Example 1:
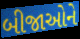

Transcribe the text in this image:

બીજાઓને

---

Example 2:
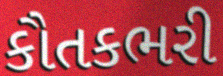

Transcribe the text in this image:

કૌતકભરી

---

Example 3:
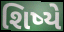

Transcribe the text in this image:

શિષ્યે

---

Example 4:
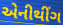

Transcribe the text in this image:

એનીથીંગ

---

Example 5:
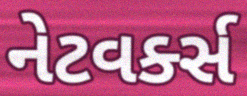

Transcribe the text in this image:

નેટવર્ક્સ